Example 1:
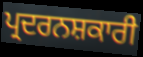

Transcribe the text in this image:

ਪ੍ਰਦਰਨਸ਼ਕਾਰੀ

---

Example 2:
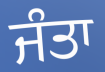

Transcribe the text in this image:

ਜੰਤਾ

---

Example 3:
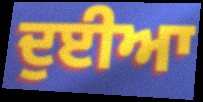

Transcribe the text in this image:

ਦੁਈਆ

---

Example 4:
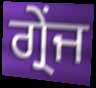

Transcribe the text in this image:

ਗ੍ਰੇਂਜ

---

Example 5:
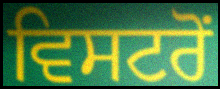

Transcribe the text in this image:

ਵਿਸਟਰੋਂ